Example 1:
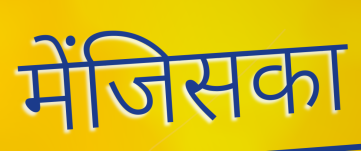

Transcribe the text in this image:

मेंजिसका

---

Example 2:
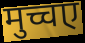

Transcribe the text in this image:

मुच्चए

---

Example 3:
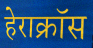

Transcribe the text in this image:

हेराक्रॉस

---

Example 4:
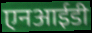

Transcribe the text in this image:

एनआईडी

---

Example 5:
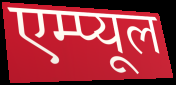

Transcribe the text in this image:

एम्प्यूल